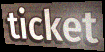
ticket